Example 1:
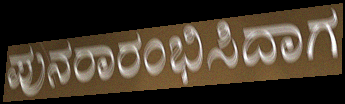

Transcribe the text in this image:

ಪುನರಾರಂಭಿಸಿದಾಗ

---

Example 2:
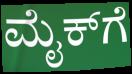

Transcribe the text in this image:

ಮೈಕ್‌ಗೆ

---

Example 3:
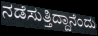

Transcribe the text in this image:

ನಡೆಸುತ್ತಿದ್ದಾನೆಂದು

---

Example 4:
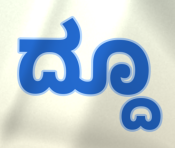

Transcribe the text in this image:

ದ್ದೂ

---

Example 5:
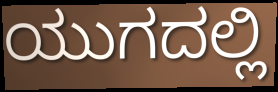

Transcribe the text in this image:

ಯುಗದಲ್ಲಿ